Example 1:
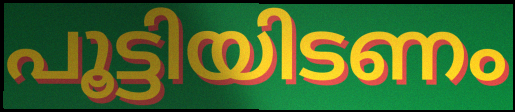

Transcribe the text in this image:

പൂട്ടിയിടണം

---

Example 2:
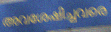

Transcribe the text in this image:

അവശേഷിച്ചവരെ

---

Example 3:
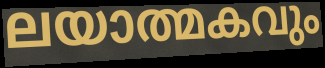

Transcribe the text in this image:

ലയാത്മകവും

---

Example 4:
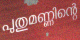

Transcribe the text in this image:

പുതുമണ്ണിന്റെ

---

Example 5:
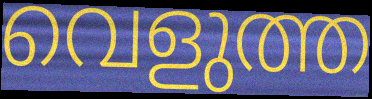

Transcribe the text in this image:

വെളുത്ത